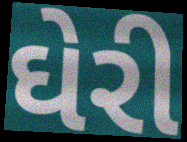
ઘેરી